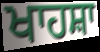
ਖਾਹਸ਼ਾ